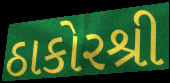
ઠાકોરશ્રી